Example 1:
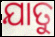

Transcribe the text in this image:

ଯାତୁ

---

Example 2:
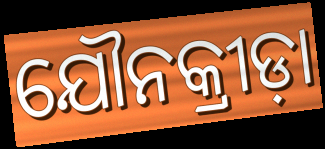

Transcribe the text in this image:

ଯୌନକ୍ରୀଡ଼ା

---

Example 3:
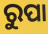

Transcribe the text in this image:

ରୁପା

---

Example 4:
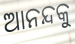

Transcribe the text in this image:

ଆନନ୍ଦକୁ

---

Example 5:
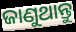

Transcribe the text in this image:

ଜାଣୁଥାନ୍ତୁ